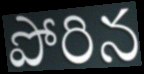
పోరిన